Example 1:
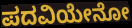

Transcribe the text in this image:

ಪದವಿಯೇನೋ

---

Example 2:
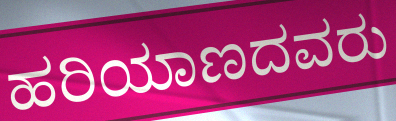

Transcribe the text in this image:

ಹರಿಯಾಣದವರು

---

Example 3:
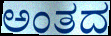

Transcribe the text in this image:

ಅಂತದ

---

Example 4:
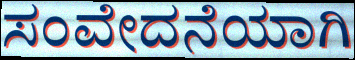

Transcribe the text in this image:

ಸಂವೇದನೆಯಾಗಿ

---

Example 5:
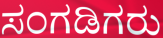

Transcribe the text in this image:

ಸಂಗಡಿಗರು